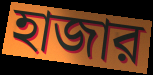
হাজার